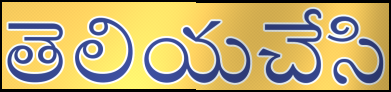
తెలియచేసి